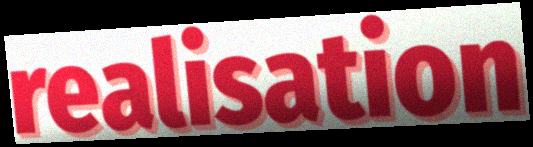
realisation